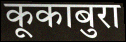
कूकाबुरा